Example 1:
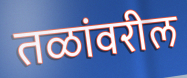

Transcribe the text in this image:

तळांवरील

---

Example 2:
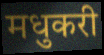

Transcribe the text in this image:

मधुकरी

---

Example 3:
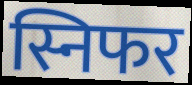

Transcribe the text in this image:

स्निफर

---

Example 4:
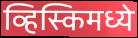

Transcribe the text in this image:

व्हिस्किमध्ये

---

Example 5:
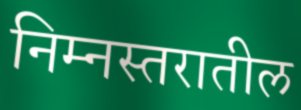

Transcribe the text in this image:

निम्नस्तरातील